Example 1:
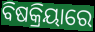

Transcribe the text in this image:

ବିଷକ୍ରିୟାରେ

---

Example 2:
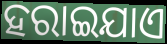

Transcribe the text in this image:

ହରାଇଯାଏ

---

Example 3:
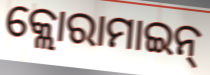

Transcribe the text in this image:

କ୍ଲୋରାମାଇନ୍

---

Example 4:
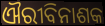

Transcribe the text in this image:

ଐରୀବିନାଶକ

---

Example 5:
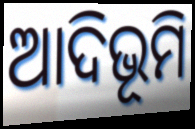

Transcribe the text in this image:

ଆଦିଭୂମି